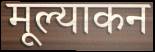
मूल्याकन